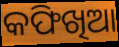
କଫିଖିଆ